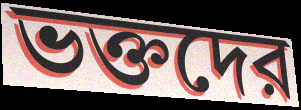
ভক্তদের